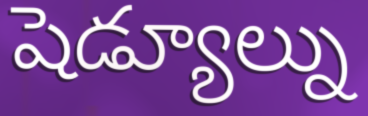
షెడ్యూల్ను